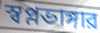
স্বপ্নভাঙ্গার